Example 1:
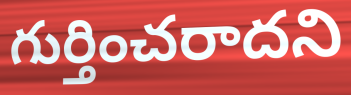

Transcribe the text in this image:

గుర్తించరాదని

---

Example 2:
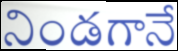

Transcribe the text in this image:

నిండగానే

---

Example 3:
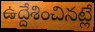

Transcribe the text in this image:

ఉద్దేశించినట్లే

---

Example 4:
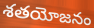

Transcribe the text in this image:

శతయోజనం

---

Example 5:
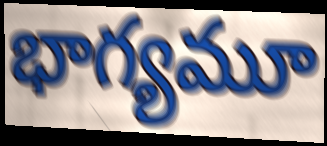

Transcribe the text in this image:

భాగ్యమూ